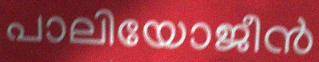
പാലിയോജീൻ